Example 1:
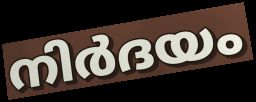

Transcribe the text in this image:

നിർദയം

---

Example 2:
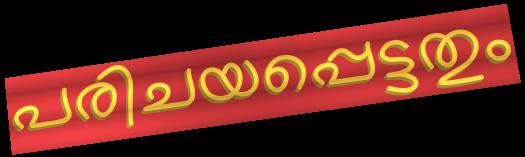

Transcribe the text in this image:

പരിചയപ്പെട്ടതും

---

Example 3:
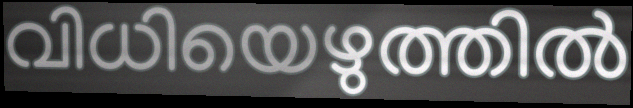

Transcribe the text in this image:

വിധിയെഴുത്തിൽ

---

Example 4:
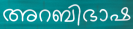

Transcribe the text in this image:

അറബിഭാഷ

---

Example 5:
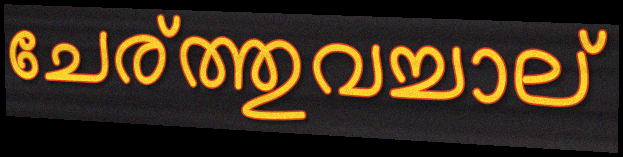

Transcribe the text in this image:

ചേര്ത്തുവച്ചാല്